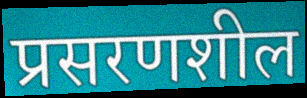
प्रसरणशील